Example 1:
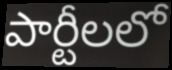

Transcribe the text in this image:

పార్టీలలో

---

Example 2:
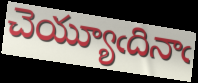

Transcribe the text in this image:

చెయ్యూఁదినాఁ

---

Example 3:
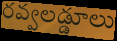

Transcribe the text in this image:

రవ్వలడ్డూలు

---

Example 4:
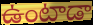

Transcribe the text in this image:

ఉంటాడా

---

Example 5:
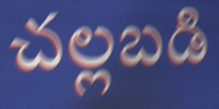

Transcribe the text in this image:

చల్లబడి